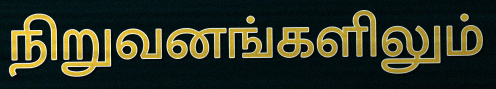
நிறுவனங்களிலும்